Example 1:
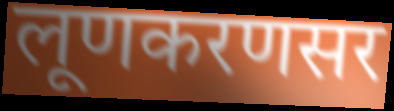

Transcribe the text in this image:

लूणकरणसर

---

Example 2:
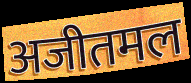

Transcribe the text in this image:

अजीतमल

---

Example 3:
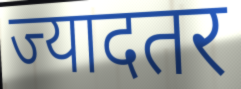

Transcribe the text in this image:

ज्यादतर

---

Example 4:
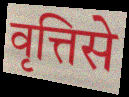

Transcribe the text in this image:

वृत्तिसे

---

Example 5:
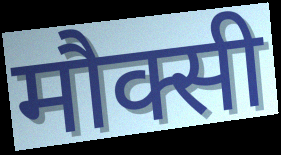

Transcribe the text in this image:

मौक्सी